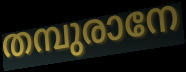
തമ്പുരാനേ